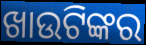
ଖାଉଟିଙ୍କର